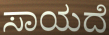
ಸಾಯದೆ